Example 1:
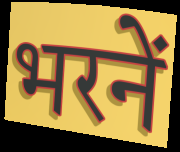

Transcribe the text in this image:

भरनें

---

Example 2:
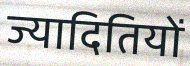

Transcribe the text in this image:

ज्यादितियों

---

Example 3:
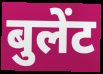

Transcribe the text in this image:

बुलेंट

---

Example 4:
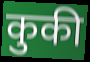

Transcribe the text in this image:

कुकी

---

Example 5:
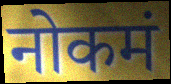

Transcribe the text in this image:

नोकमं